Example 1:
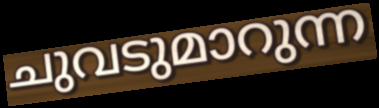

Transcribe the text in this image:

ചുവടുമാറുന്ന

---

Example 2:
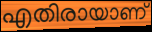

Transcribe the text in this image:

എതിരായാണ്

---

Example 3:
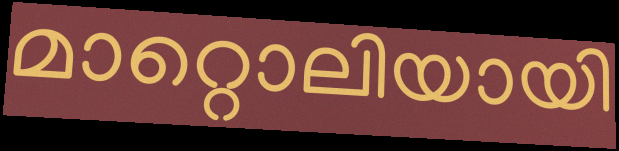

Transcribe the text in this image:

മാറ്റൊലിയായി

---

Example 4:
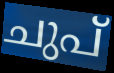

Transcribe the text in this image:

ചുപ്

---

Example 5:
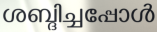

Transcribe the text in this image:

ശബ്ദിച്ചപ്പോൾ